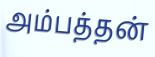
அம்பத்தன்